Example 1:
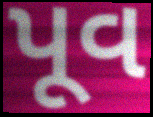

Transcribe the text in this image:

પૂવ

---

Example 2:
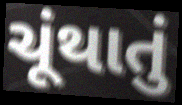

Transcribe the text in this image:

ચૂંથાતું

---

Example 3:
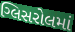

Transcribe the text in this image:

ગ્લિસરોલમાં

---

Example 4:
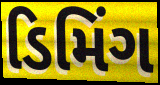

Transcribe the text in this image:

ડિમિંગ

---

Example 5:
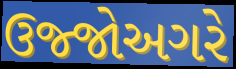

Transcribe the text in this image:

ઉજ્જોઅગરે